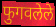
फुगवलेले